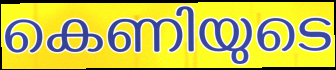
കെണിയുടെ